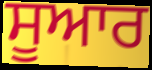
ਸੂਆਰ